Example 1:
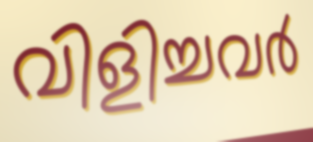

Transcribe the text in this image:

വിളിച്ചവർ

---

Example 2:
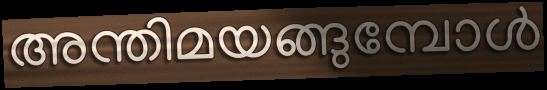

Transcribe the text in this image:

അന്തിമയങ്ങുമ്പോൾ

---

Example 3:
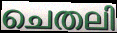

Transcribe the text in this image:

ചെതലി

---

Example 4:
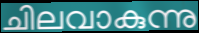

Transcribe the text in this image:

ചിലവാകുന്നു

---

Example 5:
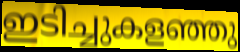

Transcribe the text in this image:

ഇടിച്ചുകളഞ്ഞു